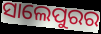
ସାଲେପୁରର